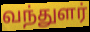
வந்துளர்